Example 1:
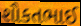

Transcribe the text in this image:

શૌકતભાઈ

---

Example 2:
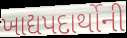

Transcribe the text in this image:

ખાદ્યપદાર્થોની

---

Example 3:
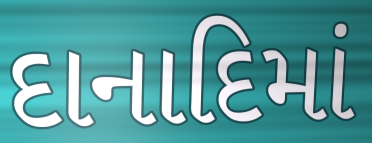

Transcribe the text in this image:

દાનાદિમાં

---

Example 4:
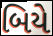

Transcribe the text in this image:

બિયે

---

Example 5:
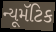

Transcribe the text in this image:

ન્યૂમૅટિક